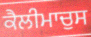
ਕੈਲੀਮਾਚੁਸ